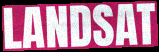
LANDSAT